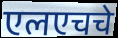
एलएचचे